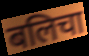
बलिचा